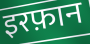
इरफ़ान